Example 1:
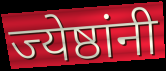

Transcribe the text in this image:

ज्येष्ठांनी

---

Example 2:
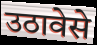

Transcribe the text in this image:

उठावेसे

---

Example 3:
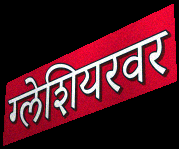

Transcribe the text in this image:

ग्लेशियरवर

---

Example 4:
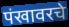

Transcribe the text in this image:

पंखावरचे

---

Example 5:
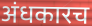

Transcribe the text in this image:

अंधकारच